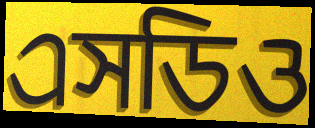
এসডিও